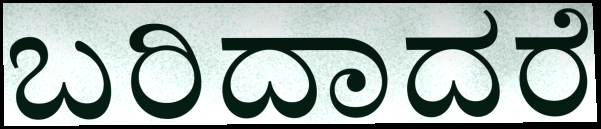
ಬರಿದಾದರೆ